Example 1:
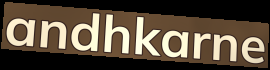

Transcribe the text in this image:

andhkarne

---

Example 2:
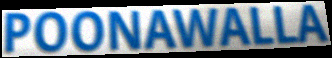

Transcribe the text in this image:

POONAWALLA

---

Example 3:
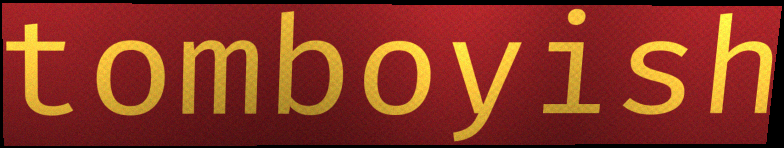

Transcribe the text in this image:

tomboyish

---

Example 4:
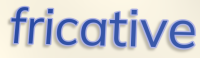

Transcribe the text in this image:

fricative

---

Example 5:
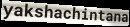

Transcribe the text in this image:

yakshachintana